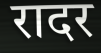
रादर